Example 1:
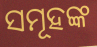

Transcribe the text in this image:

ସମୂହଙ୍କ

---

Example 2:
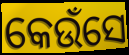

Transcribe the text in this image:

କେଉଁସେ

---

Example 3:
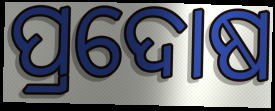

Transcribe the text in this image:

ପ୍ରଦୋଷ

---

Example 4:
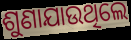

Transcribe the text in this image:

ଶୁଣାଯାଉଥିଲେ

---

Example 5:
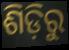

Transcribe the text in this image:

ଶିଡ଼ିରୁ